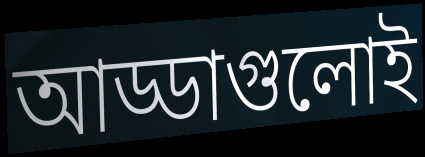
আড্ডাগুলোই